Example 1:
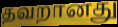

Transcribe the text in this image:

தவறானது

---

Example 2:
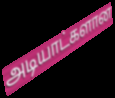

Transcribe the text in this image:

அடியாட்களான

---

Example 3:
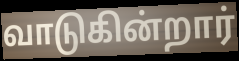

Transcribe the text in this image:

வாடுகின்றார்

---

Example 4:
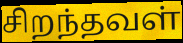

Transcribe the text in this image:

சிறந்தவள்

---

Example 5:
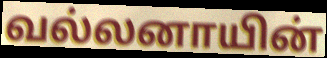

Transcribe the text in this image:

வல்லனாயின்